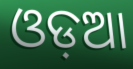
ଓଡ଼ଆ